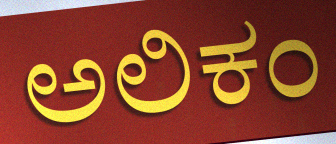
ಅಲಿಕಂ